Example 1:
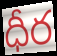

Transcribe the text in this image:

ధీర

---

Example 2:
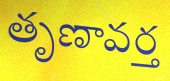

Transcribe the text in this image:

తృణావర్త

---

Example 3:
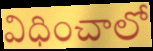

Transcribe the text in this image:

విధించాలో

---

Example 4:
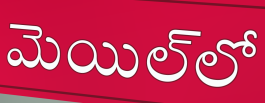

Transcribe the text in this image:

మెయిల్‌లో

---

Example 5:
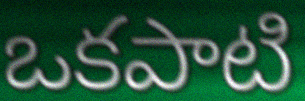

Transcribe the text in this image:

ఒకపాటి